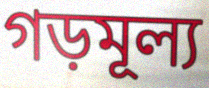
গড়মূল্য